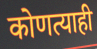
कोणत्याही